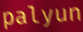
palyun